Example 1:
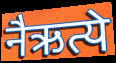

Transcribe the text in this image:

नैऋत्ये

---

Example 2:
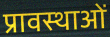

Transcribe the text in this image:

प्रावस्थाओं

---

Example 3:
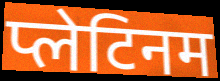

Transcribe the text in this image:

प्लेटिनम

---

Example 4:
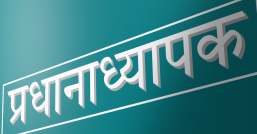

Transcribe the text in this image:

प्रधानाध्यापक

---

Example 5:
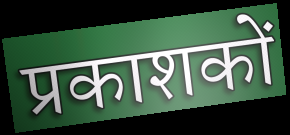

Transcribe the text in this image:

प्रकाशकों